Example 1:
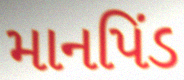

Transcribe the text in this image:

માનપિંડ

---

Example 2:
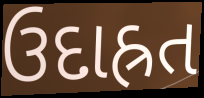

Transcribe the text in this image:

ઉદાહ્રત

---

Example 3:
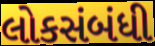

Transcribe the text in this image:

લોકસંબંધી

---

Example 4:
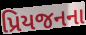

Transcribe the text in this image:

પ્રિયજનના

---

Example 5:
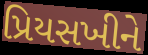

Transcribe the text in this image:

પ્રિયસખીને